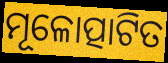
ମୂଳୋତ୍ପାଟିତ